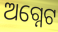
ଅଗ୍ନେଟ